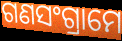
ଗଣସଂଗ୍ରାମେ